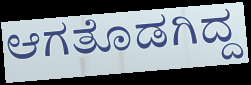
ಆಗತೊಡಗಿದ್ದ